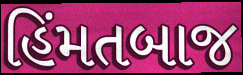
હિંમતબાજ